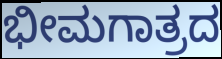
ಭೀಮಗಾತ್ರದ